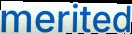
merited